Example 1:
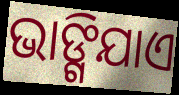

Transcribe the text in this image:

ଭାଙ୍ଗିଯାଏ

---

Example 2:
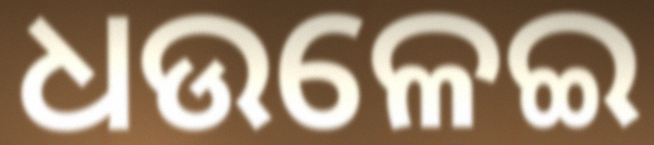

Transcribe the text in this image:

ଧଉଳେଇ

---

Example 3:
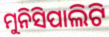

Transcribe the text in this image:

ମୁନିସିପାଲିଟି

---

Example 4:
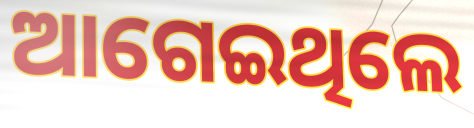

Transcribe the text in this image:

ଆଗେଇଥିଲେ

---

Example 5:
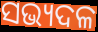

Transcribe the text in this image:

ସଭ୍ୟଦଳ